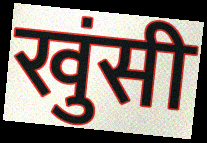
खुंसी